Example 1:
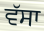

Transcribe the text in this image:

ਵੱਸਾ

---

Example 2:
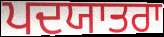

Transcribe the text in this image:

ਪਦਯਾਤਰਾ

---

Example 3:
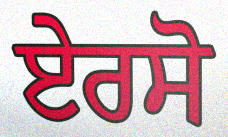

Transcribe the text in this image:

ਏਰਸੋ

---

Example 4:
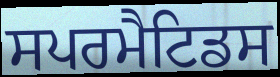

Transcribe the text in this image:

ਸਪਰਮੈਟਿਡਸ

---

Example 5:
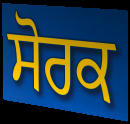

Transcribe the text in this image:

ਸੋਰਕ